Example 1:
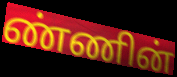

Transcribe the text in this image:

ண்ணின்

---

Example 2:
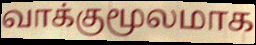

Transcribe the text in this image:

வாக்குமூலமாக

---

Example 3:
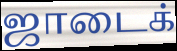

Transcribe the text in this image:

ஜாடைக்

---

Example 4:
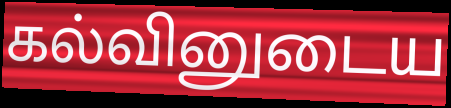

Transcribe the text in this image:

கல்வினுடைய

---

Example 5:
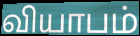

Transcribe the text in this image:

வியாபம்